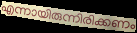
എന്നായിരുന്നിരിക്കണം